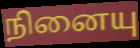
நினையு